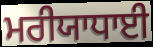
ਮਰੀਯਾਧਾਈ